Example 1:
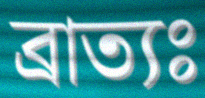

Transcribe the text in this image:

ব্রাত্যঃ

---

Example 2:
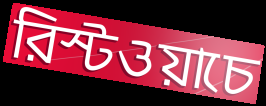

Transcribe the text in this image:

রিস্টওয়াচে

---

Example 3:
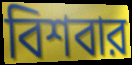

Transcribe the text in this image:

বিশবার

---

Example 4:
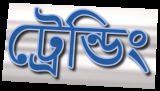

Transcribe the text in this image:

ট্রেন্ডিং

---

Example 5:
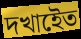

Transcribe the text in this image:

দখাইেত